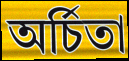
অৰ্চিতা